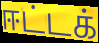
ஈட்டக்